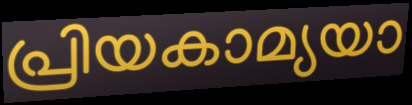
പ്രിയകാമ്യയാ